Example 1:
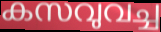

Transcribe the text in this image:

കസവുവച്ച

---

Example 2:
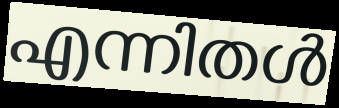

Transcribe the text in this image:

എന്നിതൾ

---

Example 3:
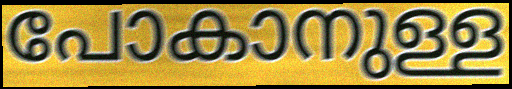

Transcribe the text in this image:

പോകാനുള്ള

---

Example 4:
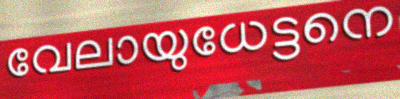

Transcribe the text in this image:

വേലായുധേട്ടനെ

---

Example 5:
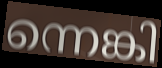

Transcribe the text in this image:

ന്നെങ്കി